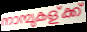
നാമ്പുകള്ക്ക്